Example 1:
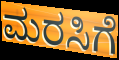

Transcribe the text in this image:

ಮರಸಿಗೆ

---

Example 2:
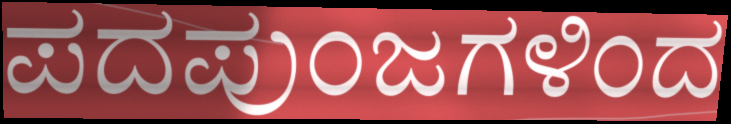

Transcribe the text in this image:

ಪದಪುಂಜಗಳಿಂದ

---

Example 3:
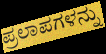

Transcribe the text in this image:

ಪ್ರಲಾಪಗಳನ್ನು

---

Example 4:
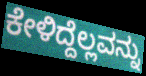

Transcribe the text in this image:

ಕೇಳಿದ್ದೆಲ್ಲವನ್ನು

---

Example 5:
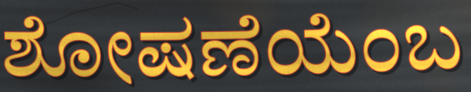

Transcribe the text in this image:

ಶೋಷಣೆಯೆಂಬ